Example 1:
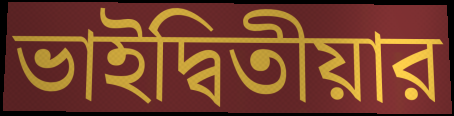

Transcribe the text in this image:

ভাইদ্বিতীয়ার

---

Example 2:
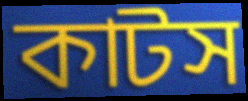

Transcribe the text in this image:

কাটস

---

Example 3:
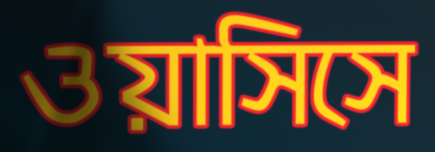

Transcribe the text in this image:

ওয়াসিসে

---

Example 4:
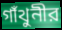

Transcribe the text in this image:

গাঁথুনীর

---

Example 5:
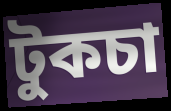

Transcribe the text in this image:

টুকচা